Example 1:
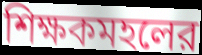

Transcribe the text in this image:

শিক্ষকমহলের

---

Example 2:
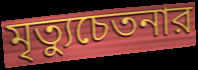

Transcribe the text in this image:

মৃত্যুচেতনার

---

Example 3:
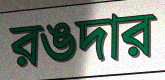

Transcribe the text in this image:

রঙদার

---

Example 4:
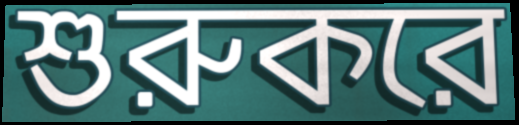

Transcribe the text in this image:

শুরুকরে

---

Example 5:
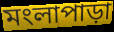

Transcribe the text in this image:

মংলাপাড়া